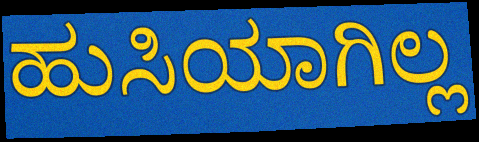
ಹುಸಿಯಾಗಿಲ್ಲ